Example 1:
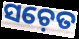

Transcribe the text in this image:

ସଚ଼େତ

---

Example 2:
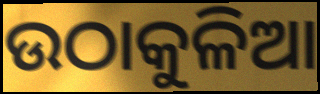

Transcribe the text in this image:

ଉଠାକୁଳିଆ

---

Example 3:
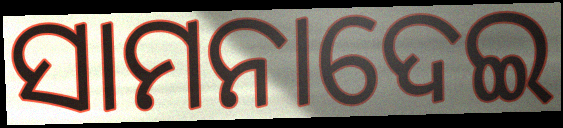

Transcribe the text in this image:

ସାମନାଦେଇ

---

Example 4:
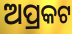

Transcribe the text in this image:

ଅପ୍ରକଟ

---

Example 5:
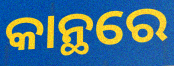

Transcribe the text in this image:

କାନ୍ଥରେ